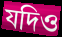
যদিও